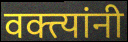
वक्त्यांनी